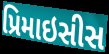
પ્રિમાઇસીસ